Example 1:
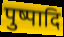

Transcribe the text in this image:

पुष्पादि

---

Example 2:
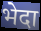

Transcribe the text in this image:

भेदा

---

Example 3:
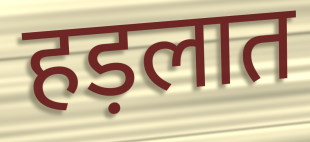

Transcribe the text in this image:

हड़लात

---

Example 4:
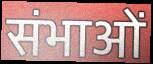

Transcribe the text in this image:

संभाओं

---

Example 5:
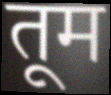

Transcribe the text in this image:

तूम